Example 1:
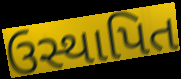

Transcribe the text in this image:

ઉસ્થાપિત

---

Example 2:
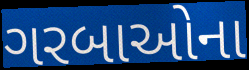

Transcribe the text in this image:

ગરબાઓના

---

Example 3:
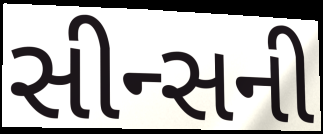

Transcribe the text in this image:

સીન્સની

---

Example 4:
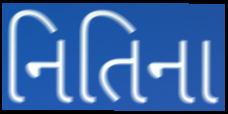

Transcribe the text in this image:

નિતિના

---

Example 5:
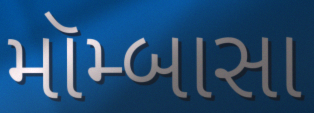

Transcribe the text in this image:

મૉમ્બાસા